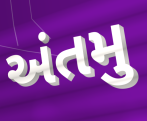
અંતમુ